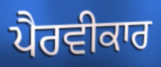
ਪੈਰਵੀਕਾਰ